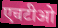
एचटीओ